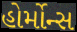
હોર્મોન્સ